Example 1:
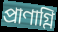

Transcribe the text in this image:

প্রাণাগ্নি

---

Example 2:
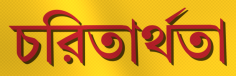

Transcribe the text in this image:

চরিতার্থতা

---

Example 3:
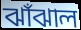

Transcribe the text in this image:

ঝাঁঝাল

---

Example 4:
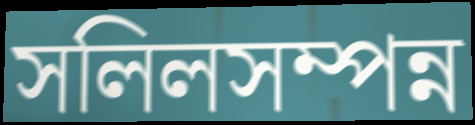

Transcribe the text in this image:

সলিলসম্পন্ন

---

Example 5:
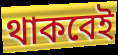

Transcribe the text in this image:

থাকবেই